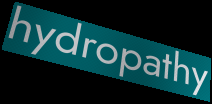
hydropathy